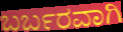
ಬರ್ಬರವಾಗಿ